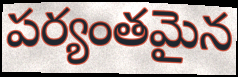
పర్యంతమైన